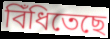
বিঁধিতেছে